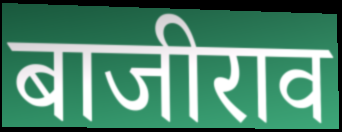
बाजीराव